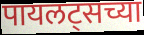
पायलट्सच्या